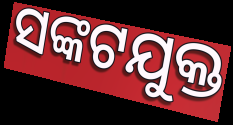
ସଙ୍କଟଯୁକ୍ତ